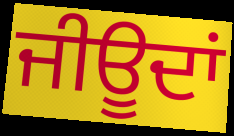
ਜੀਊਦਾਂ